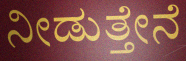
ನೀಡುತ್ತೇನೆ